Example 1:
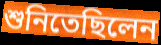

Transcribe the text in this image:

শুনিতেছিলেন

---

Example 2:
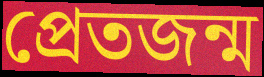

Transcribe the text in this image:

প্রেতজন্ম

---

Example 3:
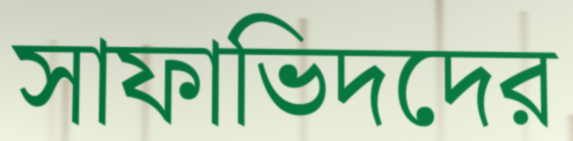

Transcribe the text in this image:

সাফাভিদদের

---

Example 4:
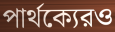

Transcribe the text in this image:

পার্থক্যেরও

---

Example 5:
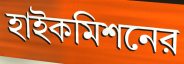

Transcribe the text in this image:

হাইকমিশনের